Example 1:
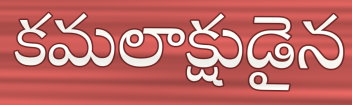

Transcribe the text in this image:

కమలాక్షుడైన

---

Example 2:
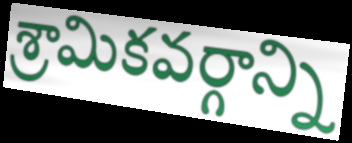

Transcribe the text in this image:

శ్రామికవర్గాన్ని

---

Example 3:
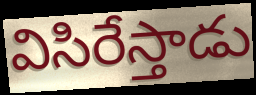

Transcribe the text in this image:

విసిరేస్తాడు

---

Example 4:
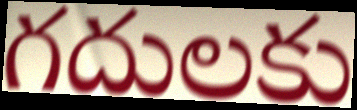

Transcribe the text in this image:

గదులకు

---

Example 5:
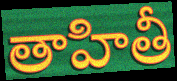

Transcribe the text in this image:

తాహితీ